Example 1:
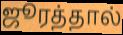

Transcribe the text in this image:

ஜூரத்தால்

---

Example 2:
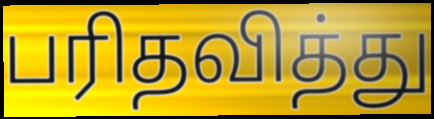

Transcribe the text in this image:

பரிதவித்து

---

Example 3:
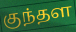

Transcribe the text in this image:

குந்தள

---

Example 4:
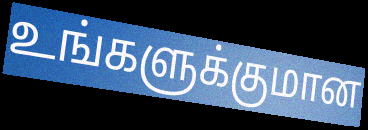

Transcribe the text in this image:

உங்களுக்குமான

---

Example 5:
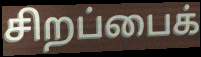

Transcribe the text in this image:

சிறப்பைக்